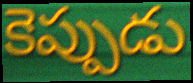
కెప్పుడు